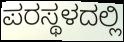
ಪರಸ್ಥಳದಲ್ಲಿ